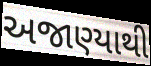
અજાણ્યાથી